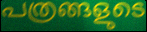
പത്രങ്ങളുടെ